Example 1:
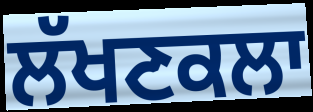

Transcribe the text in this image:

ਲੱਖਣਕਲਾ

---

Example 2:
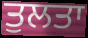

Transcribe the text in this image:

ਤੁਲਤਾ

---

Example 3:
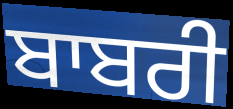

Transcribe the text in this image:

ਬਾਬਰੀ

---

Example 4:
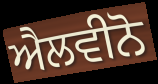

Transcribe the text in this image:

ਐਲਵੀਨੋ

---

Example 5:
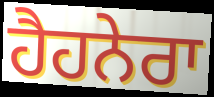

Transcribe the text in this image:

ਹੈਹਨੇਰਾ